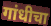
गांधीचा